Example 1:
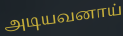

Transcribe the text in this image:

அடியவனாய்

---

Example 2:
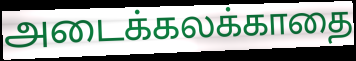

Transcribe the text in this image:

அடைக்கலக்காதை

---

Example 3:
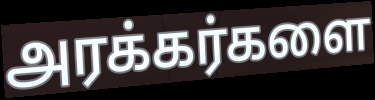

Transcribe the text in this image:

அரக்கர்களை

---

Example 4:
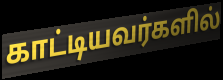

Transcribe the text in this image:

காட்டியவர்களில்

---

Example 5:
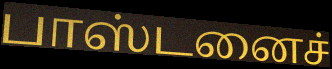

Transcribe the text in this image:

பாஸ்டனைச்